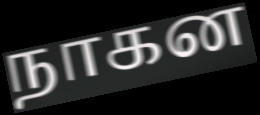
நாகன